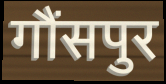
गौंसपुर